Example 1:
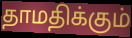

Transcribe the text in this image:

தாமதிக்கும்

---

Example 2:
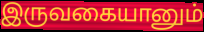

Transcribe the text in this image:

இருவகையானும்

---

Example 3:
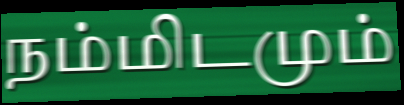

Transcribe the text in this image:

நம்மிடமும்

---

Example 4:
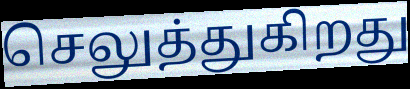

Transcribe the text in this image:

செலுத்துகிறது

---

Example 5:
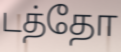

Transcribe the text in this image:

டத்தோ